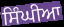
ਸਿੰਘੀਆ